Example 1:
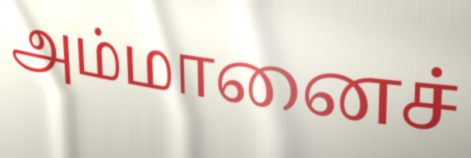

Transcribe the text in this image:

அம்மானைச்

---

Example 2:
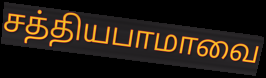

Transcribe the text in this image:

சத்தியபாமாவை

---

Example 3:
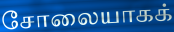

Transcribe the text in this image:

சோலையாகக்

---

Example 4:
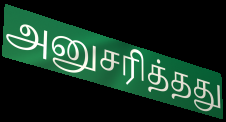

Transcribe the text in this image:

அனுசரித்தது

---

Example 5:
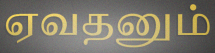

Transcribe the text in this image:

ஏவதனும்